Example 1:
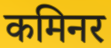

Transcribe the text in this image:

कमिनर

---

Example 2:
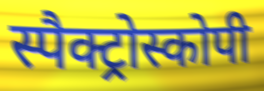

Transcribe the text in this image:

स्पैक्ट्रोस्कोपी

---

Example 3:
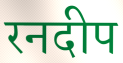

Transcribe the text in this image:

रनदीप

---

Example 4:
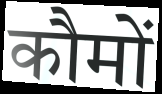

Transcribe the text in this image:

कौमों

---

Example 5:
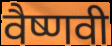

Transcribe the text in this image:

वैष्णवी